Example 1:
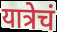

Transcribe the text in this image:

यात्रेचं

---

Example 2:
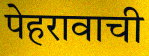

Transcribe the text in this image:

पेहरावाची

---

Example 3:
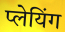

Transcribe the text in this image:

प्लेयिंग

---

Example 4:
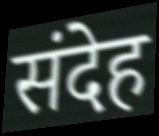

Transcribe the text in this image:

संदेह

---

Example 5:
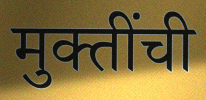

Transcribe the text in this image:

मुक्तींची